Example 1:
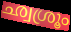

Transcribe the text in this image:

ഛ്വശ്രൂം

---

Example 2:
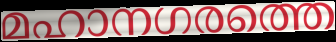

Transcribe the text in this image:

മഹാനഗരത്തെ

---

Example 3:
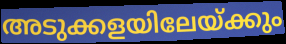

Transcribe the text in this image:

അടുക്കളയിലേയ്ക്കും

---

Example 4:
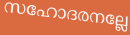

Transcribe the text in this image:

സഹോദരനല്ലേ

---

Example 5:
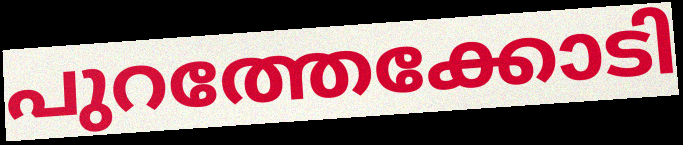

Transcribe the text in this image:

പുറത്തേക്കോടി